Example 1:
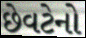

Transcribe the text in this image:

છેવટેનો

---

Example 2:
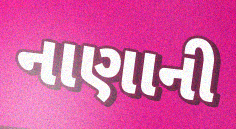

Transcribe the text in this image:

નાણાની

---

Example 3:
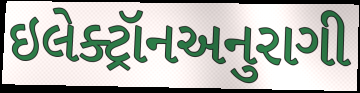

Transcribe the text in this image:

ઇલેક્ટ્રૉનઅનુરાગી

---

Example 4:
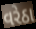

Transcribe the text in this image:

વરેઠા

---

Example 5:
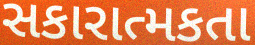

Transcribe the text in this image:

સકારાત્મકતા